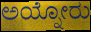
ಅಯ್ನೋರು